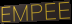
EMPEE